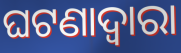
ଘଟଣାଦ୍ୱାରା